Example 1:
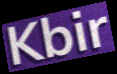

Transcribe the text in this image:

Kbir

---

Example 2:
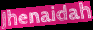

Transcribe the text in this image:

Jhenaidah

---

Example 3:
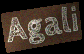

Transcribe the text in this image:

Agali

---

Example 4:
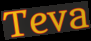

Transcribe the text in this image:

Teva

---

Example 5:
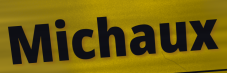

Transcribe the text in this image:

Michaux